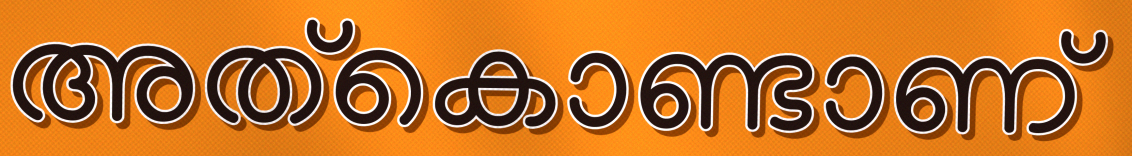
അത്കൊണ്ടാണ്